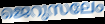
ജെറുസലേം